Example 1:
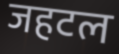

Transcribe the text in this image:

जहटल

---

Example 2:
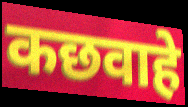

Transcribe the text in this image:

कछवाहे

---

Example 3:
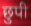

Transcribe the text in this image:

छुपी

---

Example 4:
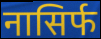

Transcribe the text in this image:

नासिर्फ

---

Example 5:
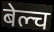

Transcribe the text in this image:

बेल्च